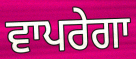
ਵਾਪਰੇਗਾ